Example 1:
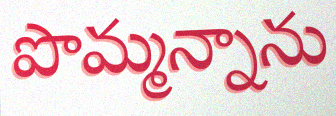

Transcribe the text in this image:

పొమ్మన్నాను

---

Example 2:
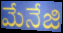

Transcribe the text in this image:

మేనేజి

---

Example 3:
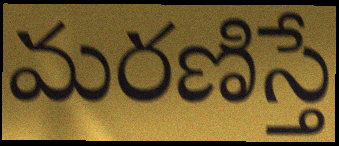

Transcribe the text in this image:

మరణిస్తే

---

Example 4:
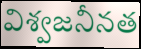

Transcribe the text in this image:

విశ్వజనీనత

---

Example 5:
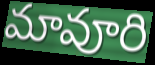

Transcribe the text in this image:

మావూరి